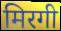
मिरगी